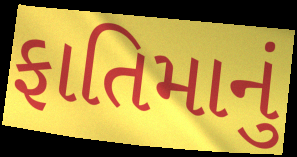
ફાતિમાનું